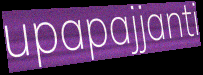
upapajjanti